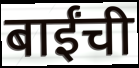
बाईंची